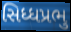
સિધ્ધપ્રભુ